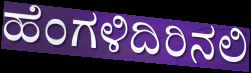
ಹೆಂಗಳಿದಿರಿನಲಿ